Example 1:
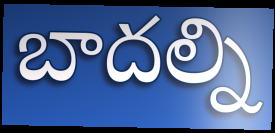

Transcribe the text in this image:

బాదల్ని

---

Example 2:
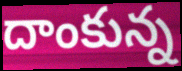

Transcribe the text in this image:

దాంకున్న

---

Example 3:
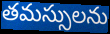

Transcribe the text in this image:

తమస్సులను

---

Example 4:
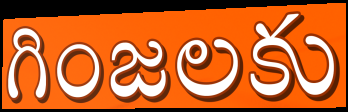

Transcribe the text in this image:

గింజలకు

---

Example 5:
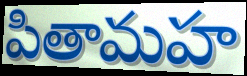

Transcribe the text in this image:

పితామహ